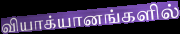
வியாக்யானங்களில்